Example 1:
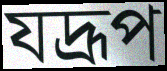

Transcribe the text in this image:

যদ্রূপ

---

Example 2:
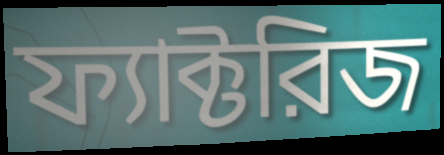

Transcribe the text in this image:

ফ্যাক্টরিজ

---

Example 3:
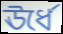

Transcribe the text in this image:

ঊর্ধে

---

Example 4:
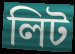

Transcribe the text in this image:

লিট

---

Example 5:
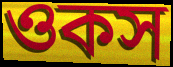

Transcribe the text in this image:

ওকস